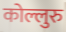
कोल्लुरु